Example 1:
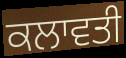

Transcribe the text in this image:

ਕਲਾਵਤੀ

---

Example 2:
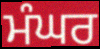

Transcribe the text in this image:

ਮੰਘਰ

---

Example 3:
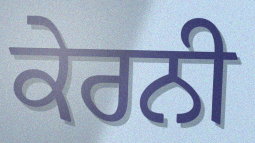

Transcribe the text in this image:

ਕੇਰਨੀ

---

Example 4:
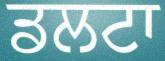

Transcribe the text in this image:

ਡਲਟਾ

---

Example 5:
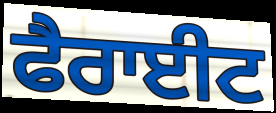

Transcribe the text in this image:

ਫੈਰਾਈਟ